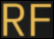
RF